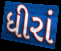
ધીરાં